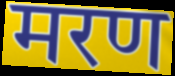
मरण